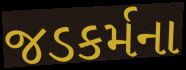
જડકર્મના